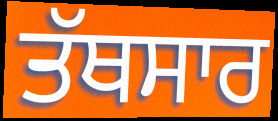
ਤੱਥਸਾਰ